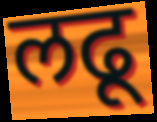
लढू